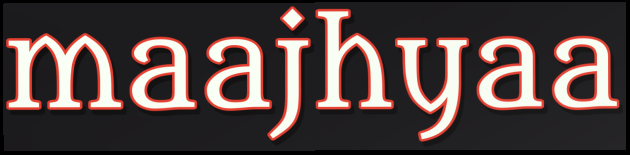
maajhyaa